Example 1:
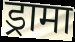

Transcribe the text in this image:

ड्रामा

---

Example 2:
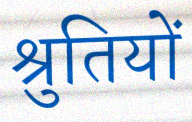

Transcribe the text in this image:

श्रुतियों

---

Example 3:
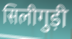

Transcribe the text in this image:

सिलीगुड़ी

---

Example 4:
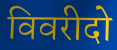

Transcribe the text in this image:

विवरीदो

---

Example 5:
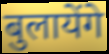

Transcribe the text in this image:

बुलायेंगे